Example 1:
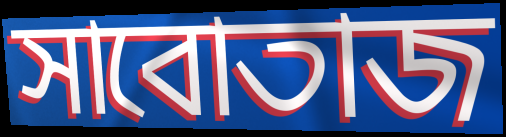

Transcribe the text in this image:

সাবোতাজ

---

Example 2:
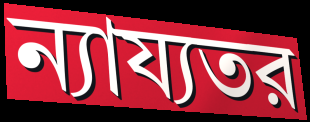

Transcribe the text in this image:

ন্যায্যতর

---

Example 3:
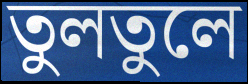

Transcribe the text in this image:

তুলতুলে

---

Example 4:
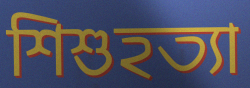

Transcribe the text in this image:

শিশুহত্যা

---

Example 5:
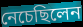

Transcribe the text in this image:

নেচেছিলেন